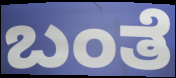
ಬಂತೆ